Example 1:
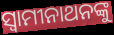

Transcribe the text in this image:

ସ୍ୱାମୀନାଥନଙ୍କୁ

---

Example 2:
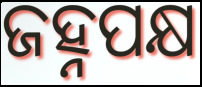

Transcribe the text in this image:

ଜହ୍ନପକ୍ଷ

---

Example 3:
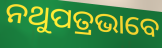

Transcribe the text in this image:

ନଥୁପତ୍ରଭାବେ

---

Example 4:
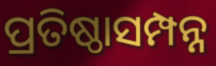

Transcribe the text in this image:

ପ୍ରତିଷ୍ଠାସମ୍ପନ୍ନ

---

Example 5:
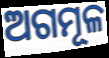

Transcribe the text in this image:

ଅଗମୂଳ